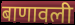
बाणावली